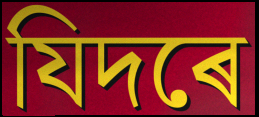
যিদৰে